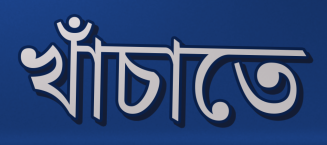
খাঁচাতে